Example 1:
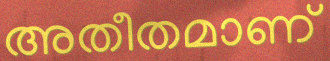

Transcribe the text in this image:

അതീതമാണ്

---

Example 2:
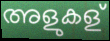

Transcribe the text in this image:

അളുകള്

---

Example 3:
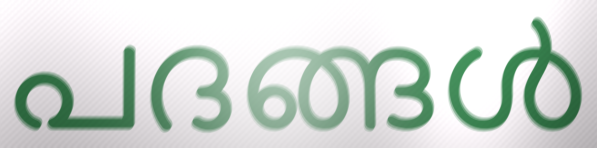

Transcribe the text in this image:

പദങ്ങൾ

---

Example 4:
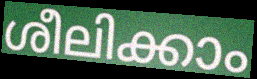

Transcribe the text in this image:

ശീലിക്കാം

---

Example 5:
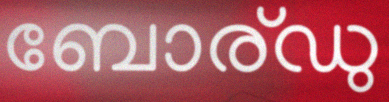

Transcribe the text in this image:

ബോര്ഡു